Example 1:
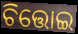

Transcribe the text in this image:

ଚିତ୍ତୋଇ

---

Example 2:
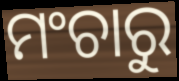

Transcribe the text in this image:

ମଂଚାରୁ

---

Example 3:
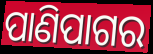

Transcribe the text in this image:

ପାଣିପାଗର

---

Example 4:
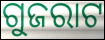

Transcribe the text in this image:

ଗୁଜରାଟ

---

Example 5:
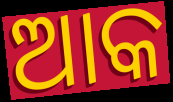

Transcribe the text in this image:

ଆକ